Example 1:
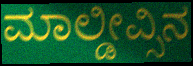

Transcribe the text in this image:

ಮಾಲ್ಡೀವ್ಸಿನ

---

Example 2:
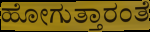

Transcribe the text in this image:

ಹೋಗುತ್ತಾರಂತೆ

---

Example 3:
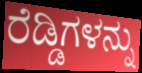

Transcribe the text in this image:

ರೆಡ್ಡಿಗಳನ್ನು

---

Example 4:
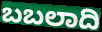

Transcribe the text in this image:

ಬಬಲಾದಿ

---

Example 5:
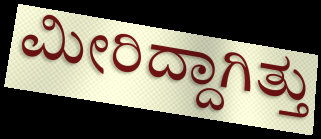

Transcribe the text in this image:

ಮೀರಿದ್ದಾಗಿತ್ತು